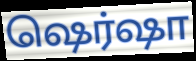
ஷெர்ஷா